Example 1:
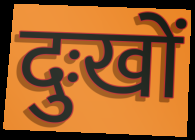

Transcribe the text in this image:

दुःखों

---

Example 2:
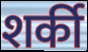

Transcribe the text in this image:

शर्की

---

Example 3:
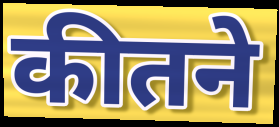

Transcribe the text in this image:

कीतने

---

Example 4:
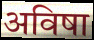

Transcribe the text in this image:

अविषा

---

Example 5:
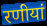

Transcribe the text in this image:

रणीयां